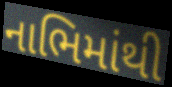
નાભિમાંથી